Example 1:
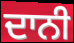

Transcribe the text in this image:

ਦਾਨੀ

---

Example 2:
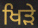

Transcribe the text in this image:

ਖਿੜੇ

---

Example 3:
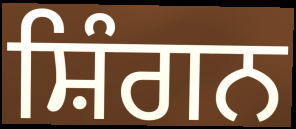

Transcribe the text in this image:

ਸ਼ਿੰਗਨ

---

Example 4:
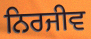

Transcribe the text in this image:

ਨਿਰਜੀਵ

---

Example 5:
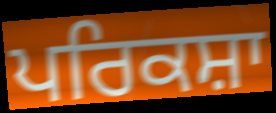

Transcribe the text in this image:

ਪਰਿਕਸ਼ਾ